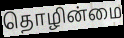
தொழின்மை